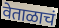
वेताळाचं